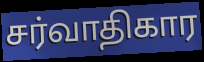
சர்வாதிகார